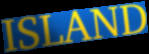
ISLAND